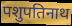
पशुपतिनाथ